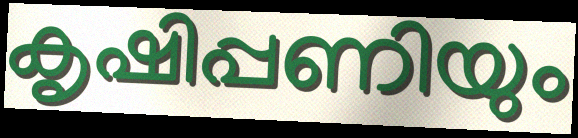
കൃഷിപ്പണിയും